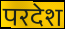
परदेश